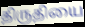
திருதியை